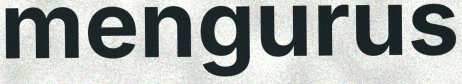
mengurus